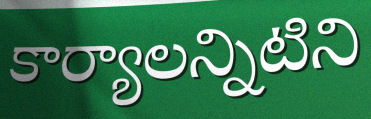
కార్యాలన్నిటిని